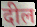
दील